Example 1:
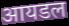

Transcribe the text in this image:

आयडल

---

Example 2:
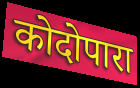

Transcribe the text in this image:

कोदोपारा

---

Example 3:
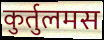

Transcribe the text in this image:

कुर्तुलमस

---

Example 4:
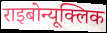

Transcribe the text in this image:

राइबोन्यूक्लिक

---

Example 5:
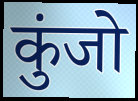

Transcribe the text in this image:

कुंजो